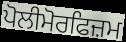
ਪੋਲੀਮੋਰਫਿਜ਼ਮ